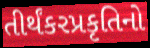
તીર્થંકરપ્રકૃતિનો